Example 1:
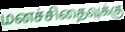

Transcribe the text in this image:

மனச்சிதைவுக்கு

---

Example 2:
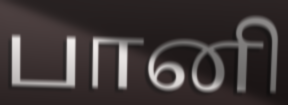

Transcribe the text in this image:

பானி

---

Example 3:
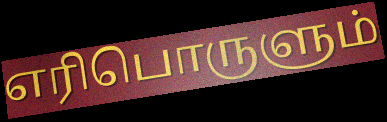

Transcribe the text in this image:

எரிபொருளும்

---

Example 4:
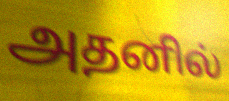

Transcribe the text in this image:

அதனில்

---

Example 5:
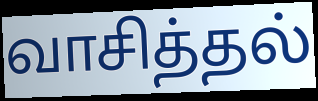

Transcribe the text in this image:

வாசித்தல்